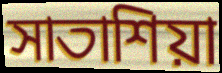
সাতাশিয়া